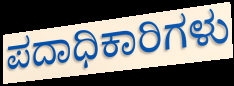
ಪದಾಧಿಕಾರಿಗಳು